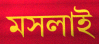
মসলাই